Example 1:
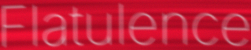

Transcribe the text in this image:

Flatulence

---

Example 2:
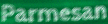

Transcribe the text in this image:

Parmesan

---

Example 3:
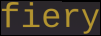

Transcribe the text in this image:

fiery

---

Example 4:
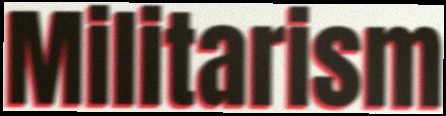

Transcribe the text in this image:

Militarism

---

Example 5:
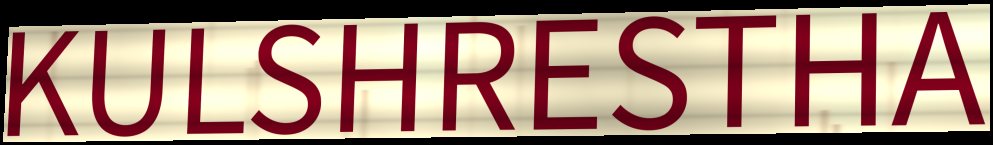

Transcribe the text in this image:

KULSHRESTHA